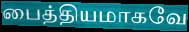
பைத்தியமாகவே